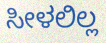
ಸೀಳಲಿಲ್ಲ